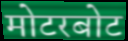
मोटरबोट